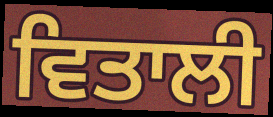
ਵਿਤਾਲੀ